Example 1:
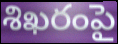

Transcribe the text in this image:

శిఖరంపై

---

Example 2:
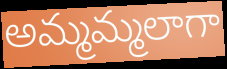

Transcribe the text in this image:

అమ్మమ్మలాగా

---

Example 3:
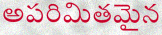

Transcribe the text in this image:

అపరిమితమైన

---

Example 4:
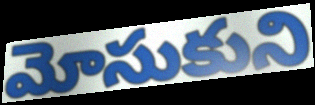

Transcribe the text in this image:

మోసుకుని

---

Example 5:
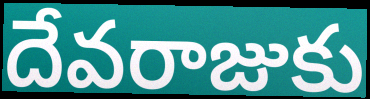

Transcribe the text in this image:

దేవరాజుకు